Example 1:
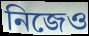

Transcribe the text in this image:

নিজেও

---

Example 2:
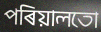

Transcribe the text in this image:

পৰিয়ালতো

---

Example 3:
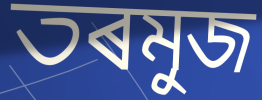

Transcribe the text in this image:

তৰমুজ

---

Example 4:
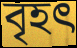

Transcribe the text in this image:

বৃহৎ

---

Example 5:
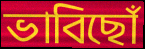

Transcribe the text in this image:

ভাবিছোঁ